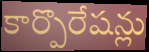
కార్పొరేషన్లు